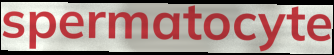
spermatocyte